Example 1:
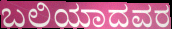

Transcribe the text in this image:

ಬಲಿಯಾದವರ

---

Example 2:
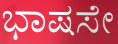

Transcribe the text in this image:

ಭಾಷಸೇ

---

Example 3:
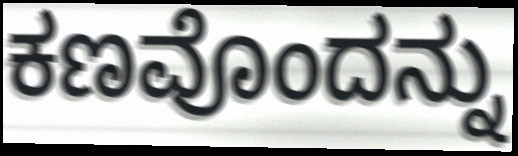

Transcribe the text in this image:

ಕಣವೊಂದನ್ನು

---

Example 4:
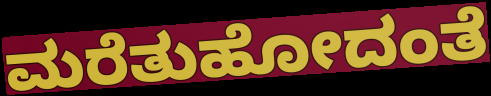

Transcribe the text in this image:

ಮರೆತುಹೋದಂತೆ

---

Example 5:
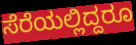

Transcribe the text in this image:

ಸೆರೆಯಲ್ಲಿದ್ದರೂ